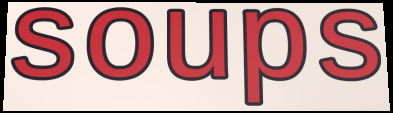
soups